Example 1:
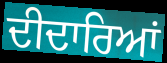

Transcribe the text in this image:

ਦੀਦਾਰਿਆਂ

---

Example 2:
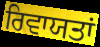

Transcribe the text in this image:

ਰਿਵਾਯਤਾਂ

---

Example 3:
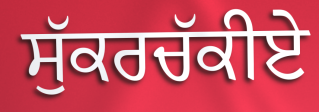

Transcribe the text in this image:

ਸੁੱਕਰਚੱਕੀਏ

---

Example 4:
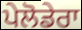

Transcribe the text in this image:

ਪੇਲੋਡੇਰਾ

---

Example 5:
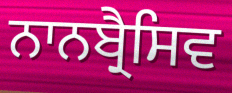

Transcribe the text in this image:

ਨਾਨਬ੍ਰੈਸਿਵ